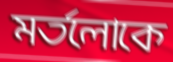
মর্তলোকে